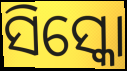
ସିସ୍କୋ